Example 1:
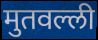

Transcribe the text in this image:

मुतवल्ली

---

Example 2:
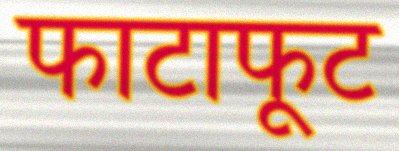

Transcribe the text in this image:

फाटाफूट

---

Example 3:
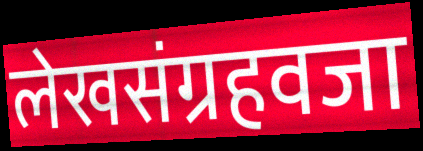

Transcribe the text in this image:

लेखसंग्रहवजा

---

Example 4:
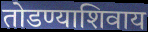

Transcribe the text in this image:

तोडण्याशिवाय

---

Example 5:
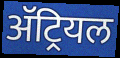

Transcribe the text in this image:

ॲट्रियल